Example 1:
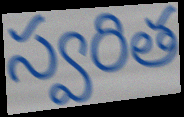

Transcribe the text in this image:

స్వరిత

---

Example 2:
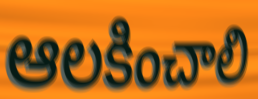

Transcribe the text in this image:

ఆలకించాలి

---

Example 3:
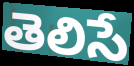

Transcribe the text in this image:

తెలిసే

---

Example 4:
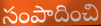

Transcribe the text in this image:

సంపాదించి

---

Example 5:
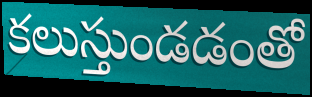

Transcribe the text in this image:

కలుస్తుండడంతో